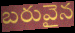
బరువైన